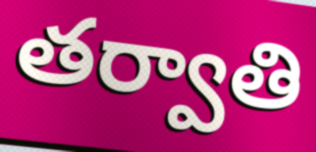
తర్వాతి